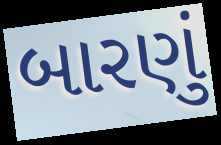
બારણું